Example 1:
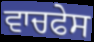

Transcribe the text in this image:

ਵਾਚਫੇਸ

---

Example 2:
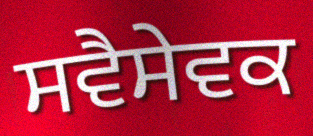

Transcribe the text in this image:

ਸਵੈਸੇਵਕ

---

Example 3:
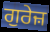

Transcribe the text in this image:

ਗੁਰੇਜ਼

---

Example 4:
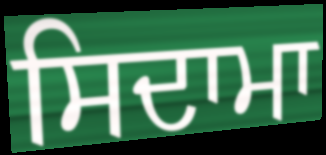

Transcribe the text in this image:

ਸਿਦਾਮਾ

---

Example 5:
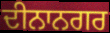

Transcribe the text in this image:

ਦੀਨਾਨਗਰ